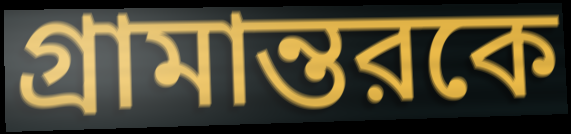
গ্রামান্তরকে